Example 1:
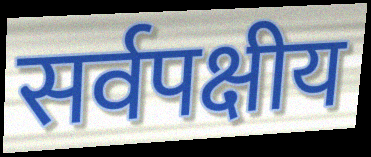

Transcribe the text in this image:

सर्वपक्षीय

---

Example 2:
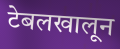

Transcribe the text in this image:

टेबलखालून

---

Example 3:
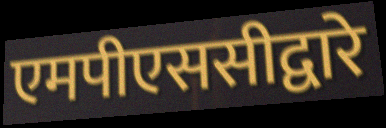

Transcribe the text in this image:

एमपीएससीद्वारे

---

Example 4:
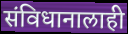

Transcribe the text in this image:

संविधानालाही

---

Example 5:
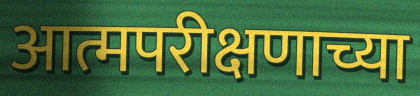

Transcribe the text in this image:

आत्मपरीक्षणाच्या